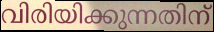
വിരിയിക്കുന്നതിന്